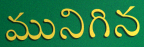
మునిగిన